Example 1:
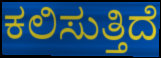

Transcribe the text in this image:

ಕಲಿಸುತ್ತಿದೆ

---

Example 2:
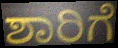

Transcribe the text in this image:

ಶಾರಿಗೆ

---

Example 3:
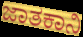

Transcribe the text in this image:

ಜಾತಕಾನಿ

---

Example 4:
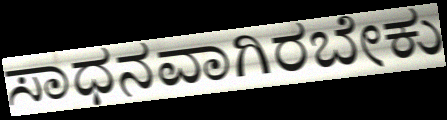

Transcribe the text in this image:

ಸಾಧನವಾಗಿರಬೇಕು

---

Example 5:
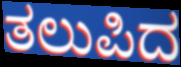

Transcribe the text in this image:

ತಲುಪಿದ